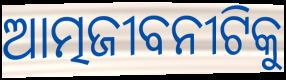
ଆତ୍ମଜୀବନୀଟିକୁ